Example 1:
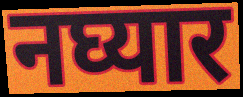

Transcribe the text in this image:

नघ्यार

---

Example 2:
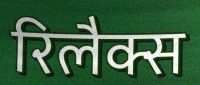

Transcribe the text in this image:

रिलैक्स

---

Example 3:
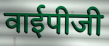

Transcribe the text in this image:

वाईपीजी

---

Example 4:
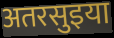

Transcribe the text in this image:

अतरसुइया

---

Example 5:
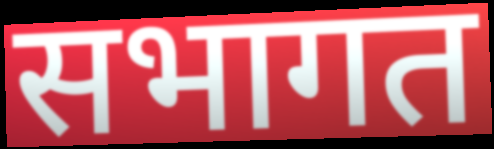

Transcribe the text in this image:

सभागत